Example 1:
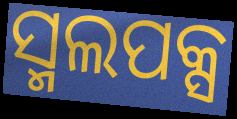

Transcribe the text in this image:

ସ୍ମଲପକ୍ସ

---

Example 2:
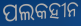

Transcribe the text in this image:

ପଲକହୀନ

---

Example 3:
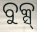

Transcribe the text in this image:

ବୁକ୍ସ୍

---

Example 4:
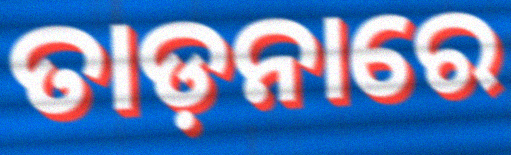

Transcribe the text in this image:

ତାଡ଼ନାରେ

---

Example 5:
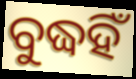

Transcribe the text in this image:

ବୁଦ୍ଧହିଁ